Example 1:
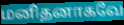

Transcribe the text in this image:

மனிதனாகவே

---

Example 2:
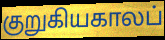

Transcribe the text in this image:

குறுகியகாலப்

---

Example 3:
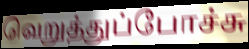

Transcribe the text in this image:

வெறுத்துப்போச்சு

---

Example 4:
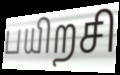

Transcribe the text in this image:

பயிறசி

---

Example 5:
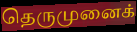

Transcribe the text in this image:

தெருமுனைக்